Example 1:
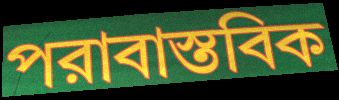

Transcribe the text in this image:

পরাবাস্তবিক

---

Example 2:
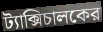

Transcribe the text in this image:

ট্যাক্সিচালকের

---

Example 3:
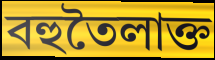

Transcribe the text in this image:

বহুতৈলাক্ত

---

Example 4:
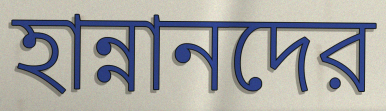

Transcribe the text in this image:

হান্নানদের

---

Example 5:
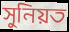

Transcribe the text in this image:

সুনিয়ত